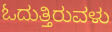
ಓದುತ್ತಿರುವಳು